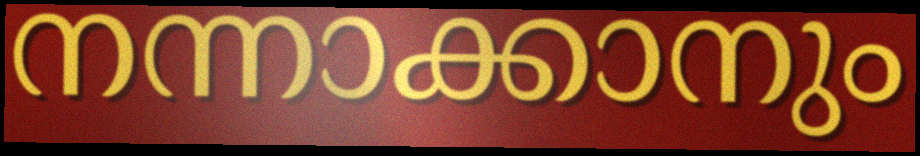
നന്നാക്കാനും